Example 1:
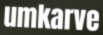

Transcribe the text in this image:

umkarve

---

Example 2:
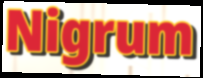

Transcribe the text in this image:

Nigrum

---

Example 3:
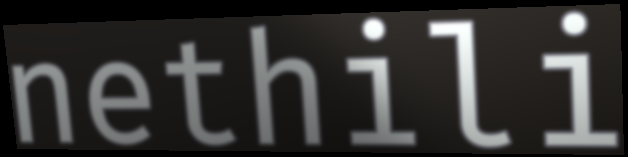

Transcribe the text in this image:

nethili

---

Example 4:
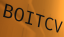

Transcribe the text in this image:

BOITCV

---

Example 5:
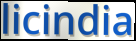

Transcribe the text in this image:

licindia